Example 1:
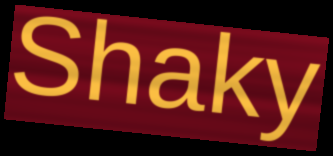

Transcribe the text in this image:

Shaky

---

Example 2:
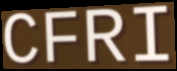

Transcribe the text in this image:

CFRI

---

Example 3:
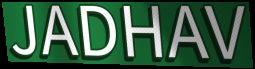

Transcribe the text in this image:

JADHAV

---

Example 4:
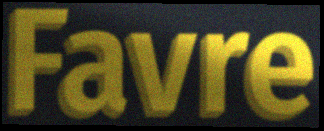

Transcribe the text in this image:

Favre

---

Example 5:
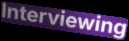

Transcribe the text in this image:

Interviewing